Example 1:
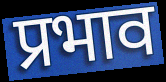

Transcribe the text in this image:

प्रभाव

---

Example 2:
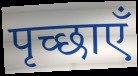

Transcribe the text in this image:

पृच्छाएँ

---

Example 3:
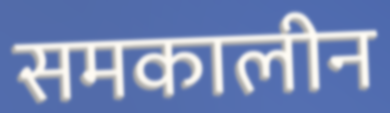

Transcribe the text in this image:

समकालीन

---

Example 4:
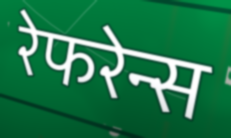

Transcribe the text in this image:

रेफरेन्स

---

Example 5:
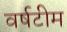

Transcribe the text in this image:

वर्षटीम